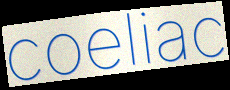
coeliac